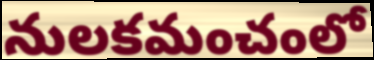
నులకమంచంలో